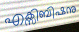
എക്സിബിഷനു